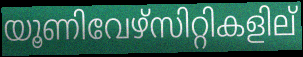
യൂണിവേഴ്സിറ്റികളില്